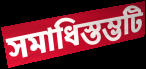
সমাধিস্তম্ভটি